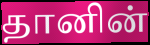
தானின்